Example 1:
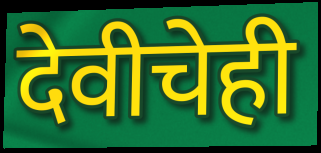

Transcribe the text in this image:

देवीचेही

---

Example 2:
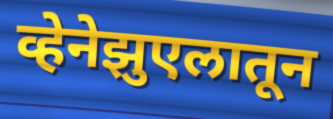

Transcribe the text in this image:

व्हेनेझुएलातून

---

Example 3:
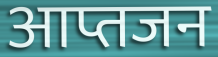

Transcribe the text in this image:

आप्तजन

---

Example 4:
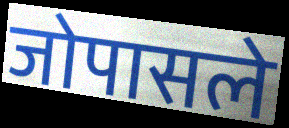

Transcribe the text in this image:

जोपासले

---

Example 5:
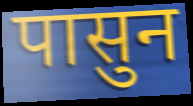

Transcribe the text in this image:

पासुन